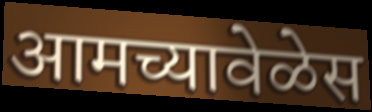
आमच्यावेळेस